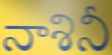
నాశినీ